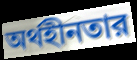
অর্থহীনতার